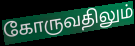
கோருவதிலும்